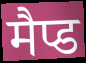
मैप्ड